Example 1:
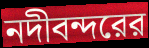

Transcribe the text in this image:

নদীবন্দরের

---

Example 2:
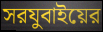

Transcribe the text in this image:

সরযুবাইয়ের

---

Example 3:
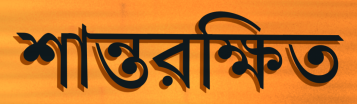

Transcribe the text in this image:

শান্তরক্ষিত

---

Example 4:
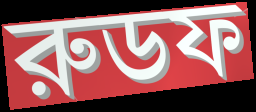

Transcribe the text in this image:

রুডফ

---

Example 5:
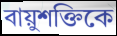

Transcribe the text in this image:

বায়ুশক্তিকে